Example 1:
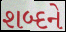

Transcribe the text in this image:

શબ્દને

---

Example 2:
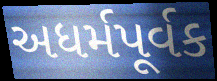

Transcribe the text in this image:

અધર્મપૂર્વક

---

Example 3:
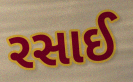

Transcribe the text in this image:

રસાઈ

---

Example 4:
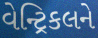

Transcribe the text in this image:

વેન્ટ્રિકલને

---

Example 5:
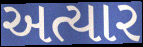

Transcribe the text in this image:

અત્યાર